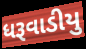
ધરૂવાડીયુ